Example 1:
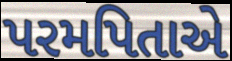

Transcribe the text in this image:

પરમપિતાએ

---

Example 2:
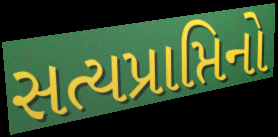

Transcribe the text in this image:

સત્યપ્રાપ્તિનો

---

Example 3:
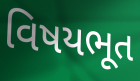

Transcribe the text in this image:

વિષયભૂત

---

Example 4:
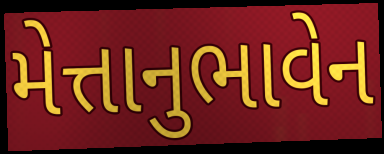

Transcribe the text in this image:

મેત્તાનુભાવેન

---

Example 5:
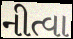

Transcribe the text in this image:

નીત્વા